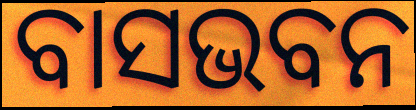
ବାସଭବନ